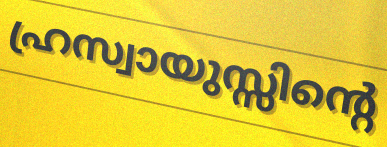
ഹ്രസ്വായുസ്സിന്റെ